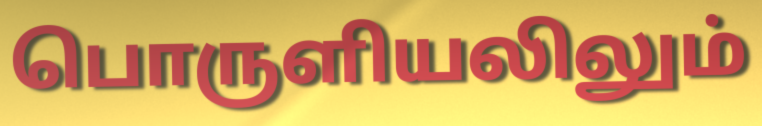
பொருளியலிலும்